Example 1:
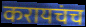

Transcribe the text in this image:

करायचंच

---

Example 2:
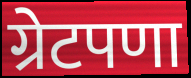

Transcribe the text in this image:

ग्रेटपणा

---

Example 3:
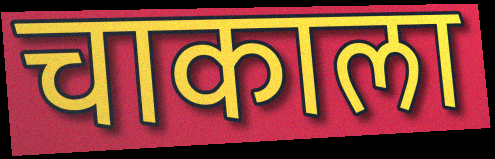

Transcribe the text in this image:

चाकाला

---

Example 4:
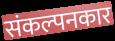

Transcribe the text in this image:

संकल्पनकार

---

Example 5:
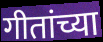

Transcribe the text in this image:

गीतांच्या